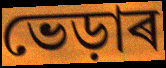
ভেড়াৰ